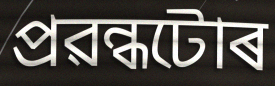
প্ৰৱন্ধটোৰ